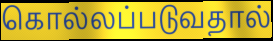
கொல்லப்படுவதால்